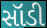
સૉડી